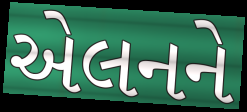
એલનને